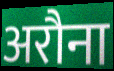
अरौना